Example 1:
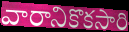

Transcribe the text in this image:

వారానికొకసారి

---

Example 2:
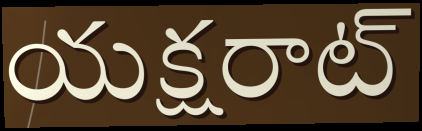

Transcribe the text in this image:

యక్షరాట్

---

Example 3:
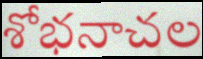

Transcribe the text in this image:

శోభనాచల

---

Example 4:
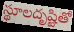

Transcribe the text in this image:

స్థూలదృష్టితో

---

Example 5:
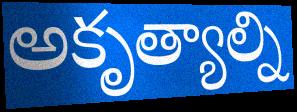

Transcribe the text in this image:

అకృత్యాల్ని